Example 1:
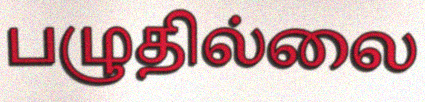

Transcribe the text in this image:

பழுதில்லை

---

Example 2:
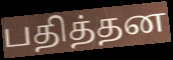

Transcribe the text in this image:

பதித்தன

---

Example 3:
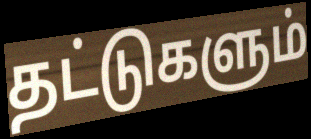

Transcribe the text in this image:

தட்டுகளும்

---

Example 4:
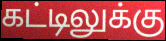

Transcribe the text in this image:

கட்டிலுக்கு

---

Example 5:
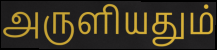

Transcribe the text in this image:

அருளியதும்